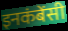
इनकंबेंसी